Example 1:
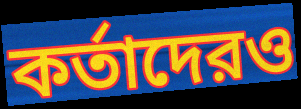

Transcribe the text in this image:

কর্তাদেরও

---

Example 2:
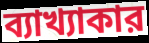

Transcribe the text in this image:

ব্যাখ্যাকার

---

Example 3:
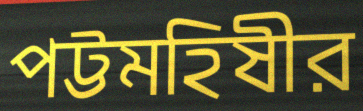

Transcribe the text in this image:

পট্টমহিষীর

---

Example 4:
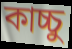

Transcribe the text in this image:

কাচ্চু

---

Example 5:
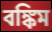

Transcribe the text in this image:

বঙ্কিম